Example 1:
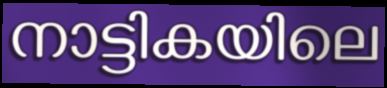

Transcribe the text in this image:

നാട്ടികയിലെ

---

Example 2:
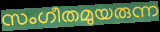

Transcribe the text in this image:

സംഗീതമുയരുന്ന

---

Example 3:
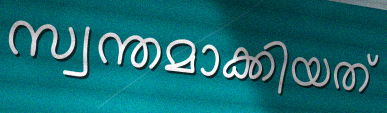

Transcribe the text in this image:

സ്വന്തമാക്കിയത്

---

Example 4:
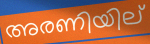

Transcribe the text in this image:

അരണിയില്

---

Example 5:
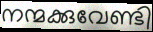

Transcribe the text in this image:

നന്മക്കുവേണ്ടി